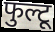
फुल्टू